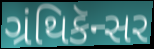
ગ્રંથિકૅન્સર